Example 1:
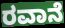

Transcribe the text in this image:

ರವಾನೆ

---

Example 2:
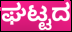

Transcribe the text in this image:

ಘಟ್ಟದ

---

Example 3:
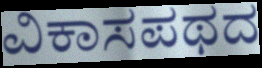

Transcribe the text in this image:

ವಿಕಾಸಪಥದ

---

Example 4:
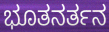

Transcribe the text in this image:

ಭೂತನರ್ತನ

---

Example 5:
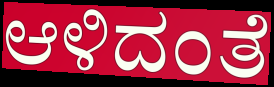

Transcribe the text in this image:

ಆಳಿದಂತೆ